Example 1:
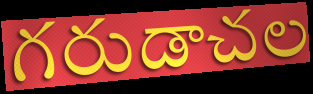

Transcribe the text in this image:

గరుడాచల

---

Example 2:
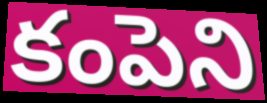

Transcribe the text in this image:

కంపెని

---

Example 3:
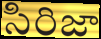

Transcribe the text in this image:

సిరిజా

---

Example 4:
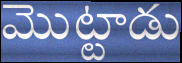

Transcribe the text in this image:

మొట్టాడు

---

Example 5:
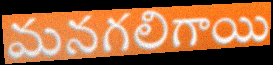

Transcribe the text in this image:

మనగలిగాయి